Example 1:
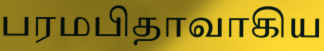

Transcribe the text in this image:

பரமபிதாவாகிய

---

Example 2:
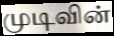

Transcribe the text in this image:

முடிவின்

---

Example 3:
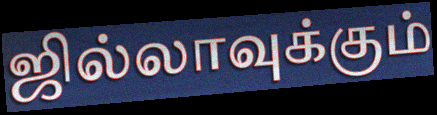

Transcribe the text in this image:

ஜில்லாவுக்கும்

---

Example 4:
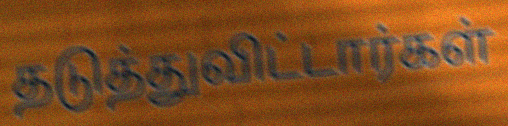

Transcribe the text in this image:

தடுத்துவிட்டார்கள்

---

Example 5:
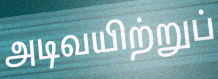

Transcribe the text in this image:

அடிவயிற்றுப்